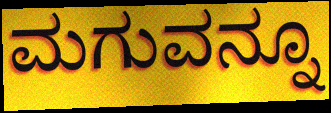
ಮಗುವನ್ನೂ